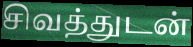
சிவத்துடன்